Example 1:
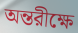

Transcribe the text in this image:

অন্তরীক্ষে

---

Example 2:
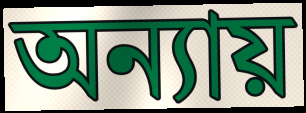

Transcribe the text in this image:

অন্যায়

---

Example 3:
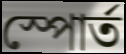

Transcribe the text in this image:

স্পোর্ত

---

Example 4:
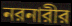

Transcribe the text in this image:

নরনারীর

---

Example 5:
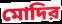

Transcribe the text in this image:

মোদির